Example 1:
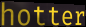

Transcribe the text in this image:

hotter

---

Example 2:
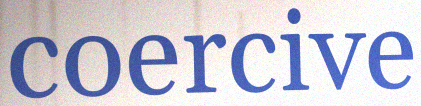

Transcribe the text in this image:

coercive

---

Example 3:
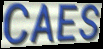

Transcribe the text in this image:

CAES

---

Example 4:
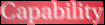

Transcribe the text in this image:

Capability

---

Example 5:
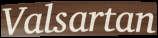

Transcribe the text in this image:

Valsartan